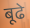
बूढे